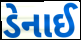
ડેનાઈ